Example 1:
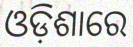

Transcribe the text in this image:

ଓଡ଼ିଶାରେ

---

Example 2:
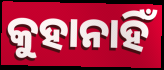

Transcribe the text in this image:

କୁହାନାହିଁ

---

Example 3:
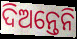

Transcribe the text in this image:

ଦିଅନ୍ତେନି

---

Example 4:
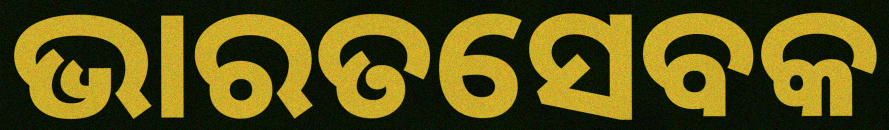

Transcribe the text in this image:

ଭାରତସେବକ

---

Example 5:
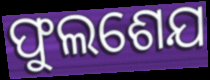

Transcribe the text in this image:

ଫୁଲଶେଯ